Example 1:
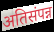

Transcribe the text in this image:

अतिसंपन्न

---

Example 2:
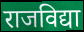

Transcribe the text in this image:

राजविद्या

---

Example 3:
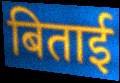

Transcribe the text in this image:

बिताई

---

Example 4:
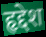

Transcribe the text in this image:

हृद्देश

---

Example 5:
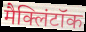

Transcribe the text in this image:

मैक्लिंटॉक